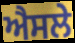
ਐਸਲੇ